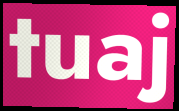
tuaj